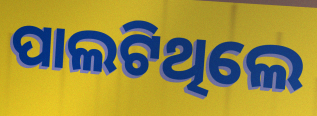
ପାଲଟିଥିଲେ